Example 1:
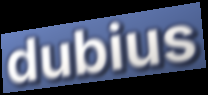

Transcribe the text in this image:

dubius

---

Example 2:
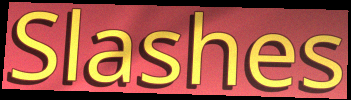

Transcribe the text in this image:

Slashes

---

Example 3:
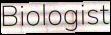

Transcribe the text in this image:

Biologist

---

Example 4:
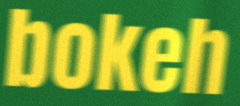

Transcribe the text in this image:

bokeh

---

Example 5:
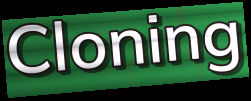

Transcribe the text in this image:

Cloning